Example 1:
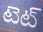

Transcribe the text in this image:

టెట్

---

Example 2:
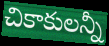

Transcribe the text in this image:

చికాకులన్నీ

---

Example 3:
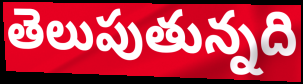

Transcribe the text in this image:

తెలుపుతున్నది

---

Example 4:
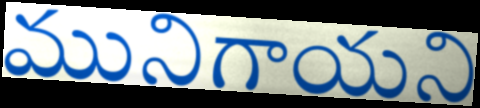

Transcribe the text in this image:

మునిగాయని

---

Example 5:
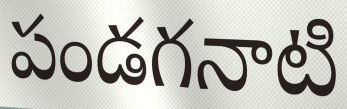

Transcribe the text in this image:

పండగనాటి